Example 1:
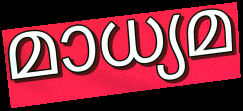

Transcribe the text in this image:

മാധ്യമ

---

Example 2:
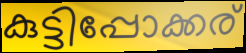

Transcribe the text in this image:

കുട്ടിപ്പോക്കര്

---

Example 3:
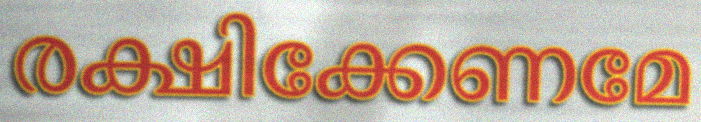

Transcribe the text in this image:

രക്ഷിക്കേണമേ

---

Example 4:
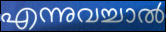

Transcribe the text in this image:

എന്നുവച്ചാൽ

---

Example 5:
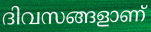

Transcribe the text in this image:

ദിവസങ്ങളാണ്